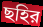
ছহির